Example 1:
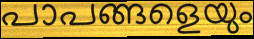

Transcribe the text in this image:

പാപങ്ങളെയും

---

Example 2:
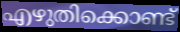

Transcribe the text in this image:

എഴുതിക്കൊണ്ട്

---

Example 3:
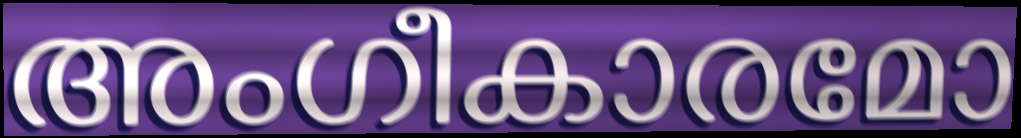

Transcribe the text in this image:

അംഗീകാരമോ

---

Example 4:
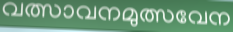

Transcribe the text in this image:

വത്സാവനമുത്സവേന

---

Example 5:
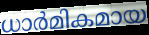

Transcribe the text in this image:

ധാർമികമായ